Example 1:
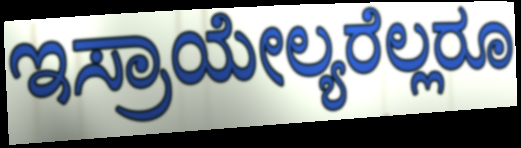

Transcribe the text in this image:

ಇಸ್ರಾಯೇಲ್ಯರೆಲ್ಲರೂ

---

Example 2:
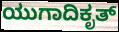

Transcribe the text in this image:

ಯುಗಾದಿಕೃತ್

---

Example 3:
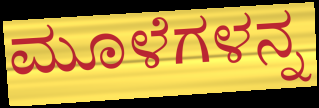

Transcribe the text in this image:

ಮೂಳೆಗಳನ್ನ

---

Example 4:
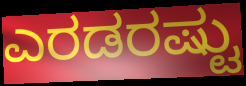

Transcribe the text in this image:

ಎರಡರಷ್ಟು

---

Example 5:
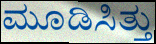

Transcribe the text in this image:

ಮೂಡಿಸಿತ್ತು